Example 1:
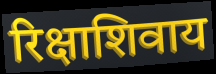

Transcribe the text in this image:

रिक्षाशिवाय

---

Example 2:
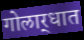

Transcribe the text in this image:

गोलार्धात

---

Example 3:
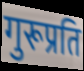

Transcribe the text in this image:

गुरूप्रति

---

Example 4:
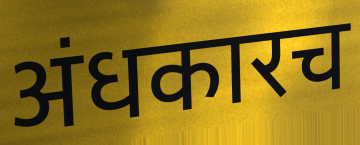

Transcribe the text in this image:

अंधकारच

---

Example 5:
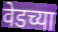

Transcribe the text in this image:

वेडच्या